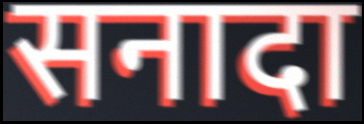
सनादा